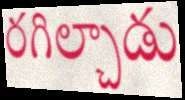
రగిల్చాడు